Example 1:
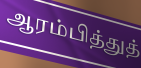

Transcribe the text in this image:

ஆரம்பித்துத்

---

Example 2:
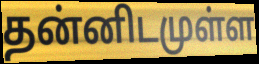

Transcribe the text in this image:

தன்னிடமுள்ள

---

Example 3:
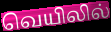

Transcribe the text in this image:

வெயிலில்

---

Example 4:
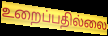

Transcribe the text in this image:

உறைப்பதில்லை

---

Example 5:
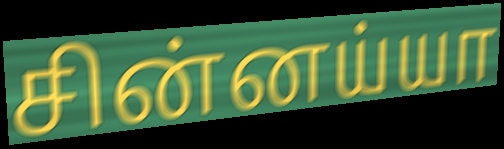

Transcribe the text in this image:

சின்னய்யா